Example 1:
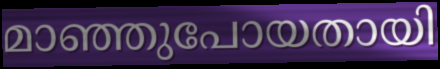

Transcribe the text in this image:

മാഞ്ഞുപോയതായി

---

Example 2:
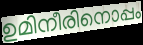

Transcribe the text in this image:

ഉമിനീരിനൊപ്പം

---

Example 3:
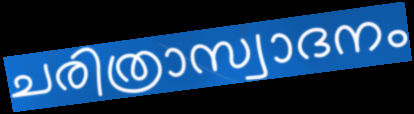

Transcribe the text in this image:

ചരിത്രാസ്വാദനം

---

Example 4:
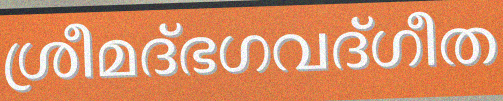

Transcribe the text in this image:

ശ്രീമദ്ഭഗവദ്ഗീത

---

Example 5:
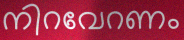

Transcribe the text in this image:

നിറവേറണം